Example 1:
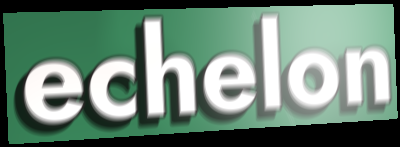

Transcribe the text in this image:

echelon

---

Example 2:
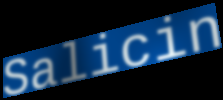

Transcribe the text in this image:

Salicin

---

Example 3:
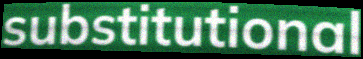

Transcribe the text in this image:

substitutional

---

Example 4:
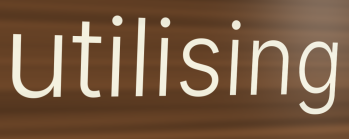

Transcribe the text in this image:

utilising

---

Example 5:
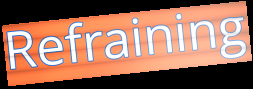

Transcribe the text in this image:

Refraining